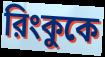
রিংকুকে